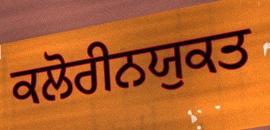
ਕਲੋਰੀਨਯੁਕਤ